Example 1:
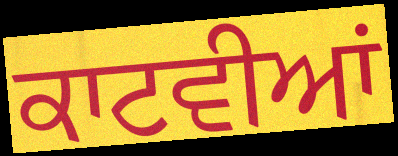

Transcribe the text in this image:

ਕਾਟਵੀਆਂ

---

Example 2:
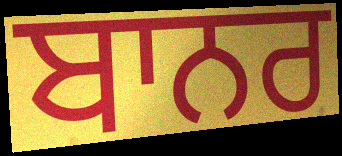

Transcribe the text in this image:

ਬਾਨਰ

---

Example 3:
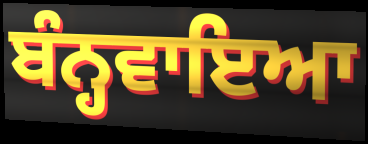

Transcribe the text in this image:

ਬੰਨ੍ਹਵਾਇਆ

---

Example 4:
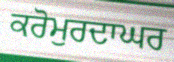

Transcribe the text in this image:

ਕਰੋਮੁਰਦਾਘਰ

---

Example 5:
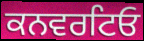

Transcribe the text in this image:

ਕਨਵਰਟਿਓ